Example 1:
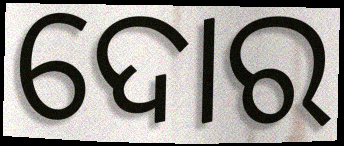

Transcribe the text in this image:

ଦୋର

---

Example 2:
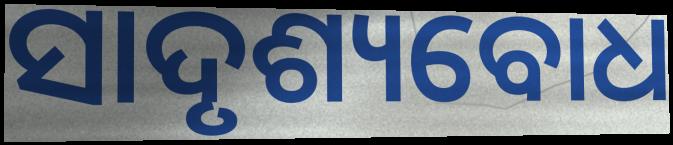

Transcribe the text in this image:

ସାଦୃଶ୍ୟବୋଧ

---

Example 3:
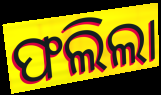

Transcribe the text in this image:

ଫଲିଲା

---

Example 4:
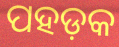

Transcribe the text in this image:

ପହଡ଼କ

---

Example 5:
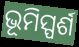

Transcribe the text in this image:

ଭୂମିସ୍ପର୍ଶ